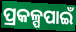
ପ୍ରକଳ୍ପପାଇଁ